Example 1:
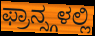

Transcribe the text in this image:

ಫ್ರಾನ್ಸ್ಗಳಲ್ಲಿ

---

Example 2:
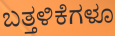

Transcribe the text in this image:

ಬತ್ತಳಿಕೆಗಳೂ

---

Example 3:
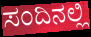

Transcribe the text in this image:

ಸಂದಿನಲ್ಲಿ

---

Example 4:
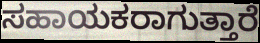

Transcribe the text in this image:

ಸಹಾಯಕರಾಗುತ್ತಾರೆ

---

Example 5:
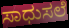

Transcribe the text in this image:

ಸಾಧುಸಲೆ